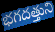
భగదత్తుని